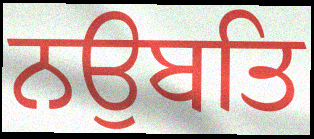
ਨਉਬਤਿ